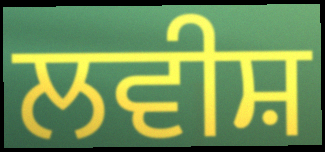
ਲਵੀਸ਼